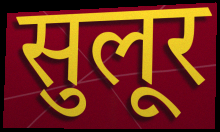
सुलूर